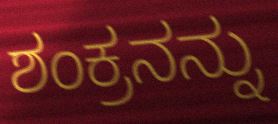
ಶಂಕ್ರನನ್ನು